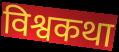
विश्वकथा